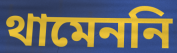
থামেননি